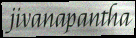
jivanapantha